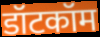
डॉटकॉम